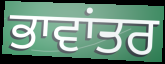
ਭਾਵਾਂਤਰ